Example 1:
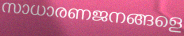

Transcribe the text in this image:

സാധാരണജനങ്ങളെ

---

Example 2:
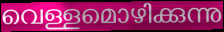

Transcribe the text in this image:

വെള്ളമൊഴിക്കുന്നു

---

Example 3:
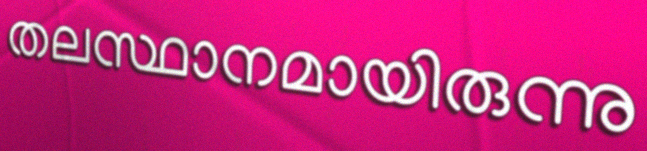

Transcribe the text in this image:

തലസ്ഥാനമായിരുന്നു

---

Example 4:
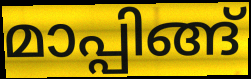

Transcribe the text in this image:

മാപ്പിങ്ങ്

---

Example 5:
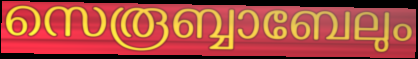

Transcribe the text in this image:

സെരൂബ്ബാബേലും